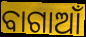
ବାଗାଆଁ